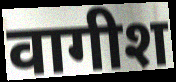
वागीश